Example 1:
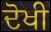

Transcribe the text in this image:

ਦੋਖੀ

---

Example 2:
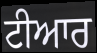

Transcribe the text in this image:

ਟੀਆਰ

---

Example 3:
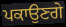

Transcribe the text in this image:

ਪਕਾਉਣਗੇ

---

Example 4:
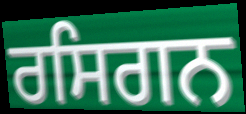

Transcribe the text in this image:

ਰਸਿਗਨ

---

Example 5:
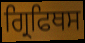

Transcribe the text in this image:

ਗ੍ਰਿਫਿਥਸ